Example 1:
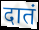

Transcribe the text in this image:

दातं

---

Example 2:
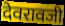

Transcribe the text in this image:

देवरावजी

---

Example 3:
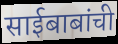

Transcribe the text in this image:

साईबाबांची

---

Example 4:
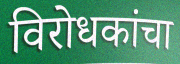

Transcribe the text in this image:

विरोधकांचा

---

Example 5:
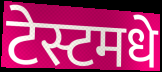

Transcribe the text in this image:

टेस्टमधे